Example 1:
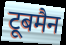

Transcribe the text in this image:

टूबमैन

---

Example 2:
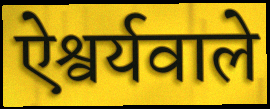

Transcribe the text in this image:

ऐश्वर्यवाले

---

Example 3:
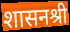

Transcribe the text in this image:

शासनश्री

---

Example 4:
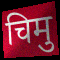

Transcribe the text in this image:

चिमु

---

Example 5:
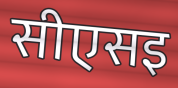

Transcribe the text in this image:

सीएसइ